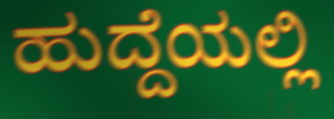
ಹುದ್ದೆಯಲ್ಲಿ